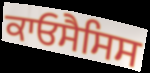
ਕਾਓਸੈਸਿਸ